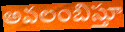
అవలంబిస్తూ